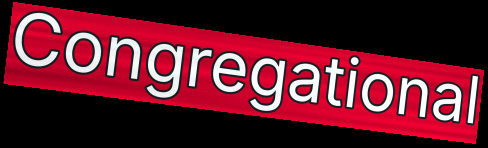
Congregational